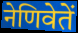
नेणिवेतें